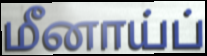
மீனாய்ப்